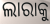
ଲାରାକୁ